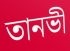
তানভী